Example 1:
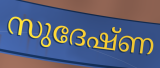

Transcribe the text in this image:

സുദേഷ്ണ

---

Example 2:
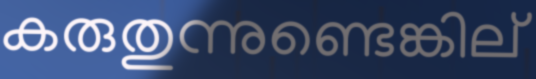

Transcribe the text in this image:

കരുതുന്നുണ്ടെങ്കില്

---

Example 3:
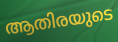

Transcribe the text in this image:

ആതിരയുടെ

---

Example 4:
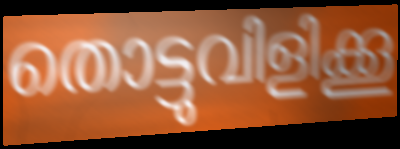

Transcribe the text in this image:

തൊട്ടുവിളിക്കൂ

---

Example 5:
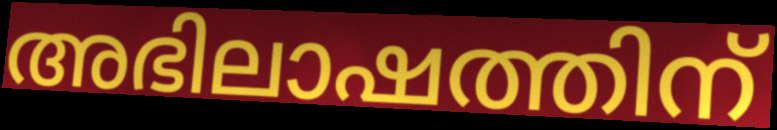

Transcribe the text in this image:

അഭിലാഷത്തിന്